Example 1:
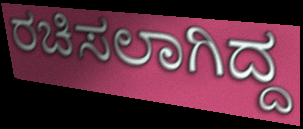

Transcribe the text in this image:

ರಚಿಸಲಾಗಿದ್ದ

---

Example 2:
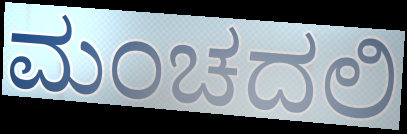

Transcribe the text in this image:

ಮಂಚದಲಿ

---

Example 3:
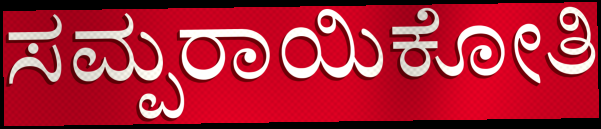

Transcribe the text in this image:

ಸಮ್ಪರಾಯಿಕೋತಿ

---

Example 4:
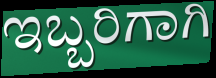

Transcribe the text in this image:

ಇಬ್ಬರಿಗಾಗಿ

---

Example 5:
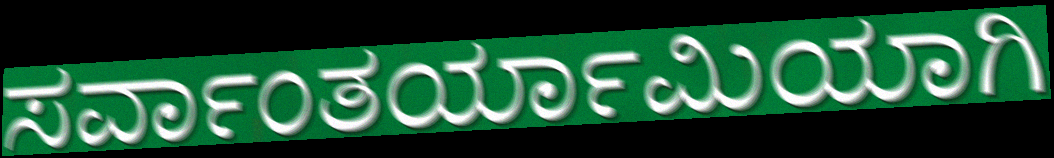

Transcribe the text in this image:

ಸರ್ವಾಂತರ್ಯಾಮಿಯಾಗಿ